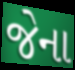
જેના